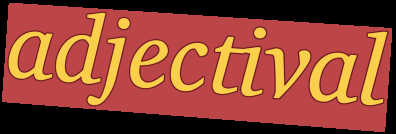
adjectival